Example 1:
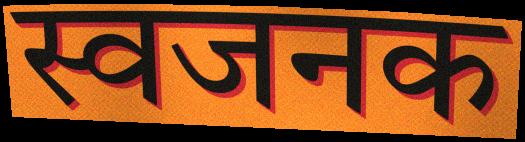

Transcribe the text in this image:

स्वजनक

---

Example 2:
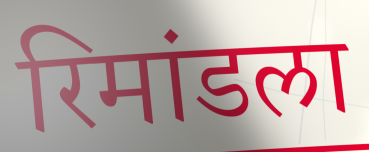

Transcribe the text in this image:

रिमांडला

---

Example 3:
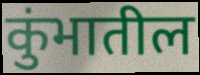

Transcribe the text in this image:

कुंभातील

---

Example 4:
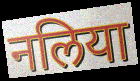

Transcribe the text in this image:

नलिया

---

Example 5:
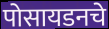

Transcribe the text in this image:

पोसायडनचे